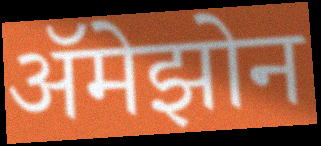
ॲमेझोन